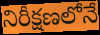
నిరీక్షణలోనే